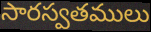
సారస్వతములు